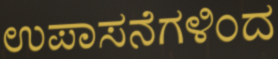
ಉಪಾಸನೆಗಳಿಂದ